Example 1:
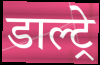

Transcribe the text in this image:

डाल्ट्रे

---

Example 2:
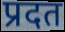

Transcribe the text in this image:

प्रदत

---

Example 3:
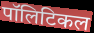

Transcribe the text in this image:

पॉलिटिकल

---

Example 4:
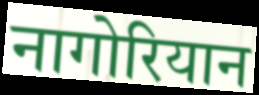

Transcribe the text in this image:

नागोरियान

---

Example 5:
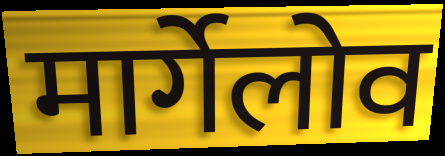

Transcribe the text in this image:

मार्गेलोव